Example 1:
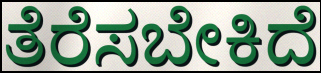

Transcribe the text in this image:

ತೆರೆಸಬೇಕಿದೆ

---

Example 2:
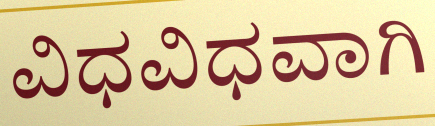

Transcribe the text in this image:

ವಿಧವಿಧವಾಗಿ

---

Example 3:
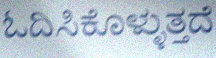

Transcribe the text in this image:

ಓದಿಸಿಕೊಳ್ಳುತ್ತದೆ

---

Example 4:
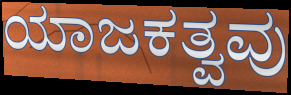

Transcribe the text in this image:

ಯಾಜಕತ್ವವು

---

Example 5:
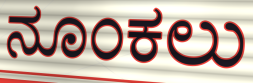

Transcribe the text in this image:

ನೂಂಕಲು